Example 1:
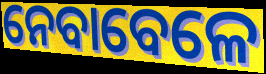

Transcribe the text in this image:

ନେବାବେଳେ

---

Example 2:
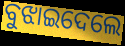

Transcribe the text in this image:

ବୁଝାଇଦେଲେ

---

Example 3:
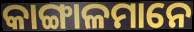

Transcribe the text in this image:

କାଙ୍ଗାଳମାନେ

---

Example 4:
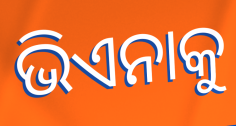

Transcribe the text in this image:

ଭିଏନାକୁ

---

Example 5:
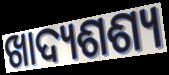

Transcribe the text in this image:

ଖାଦ୍ୟଶଶ୍ୟ